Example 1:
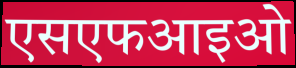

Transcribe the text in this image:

एसएफआइओ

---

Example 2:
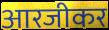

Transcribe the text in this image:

आरजीकर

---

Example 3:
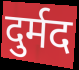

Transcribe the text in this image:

दुर्मद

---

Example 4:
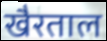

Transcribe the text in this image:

खैरताल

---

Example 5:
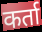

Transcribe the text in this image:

कर्ता